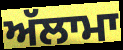
ਅੱਲਾਮਾ